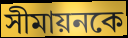
সীমায়নকে